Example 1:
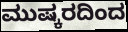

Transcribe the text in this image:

ಮುಷ್ಕರದಿಂದ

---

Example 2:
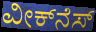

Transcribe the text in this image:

ವೀಕ್‌ನೆಸ್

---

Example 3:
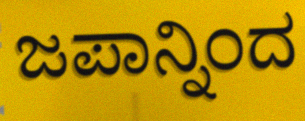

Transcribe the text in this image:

ಜಪಾನ್ನಿಂದ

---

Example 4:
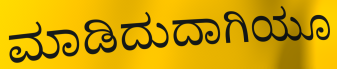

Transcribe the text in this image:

ಮಾಡಿದುದಾಗಿಯೂ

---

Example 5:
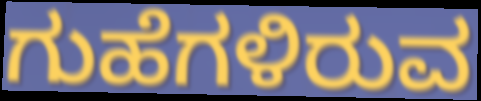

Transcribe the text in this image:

ಗುಹೆಗಳಿರುವ